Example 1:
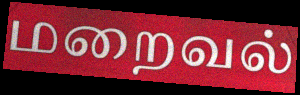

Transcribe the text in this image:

மறைவல்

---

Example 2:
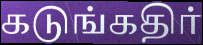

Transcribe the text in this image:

கடுங்கதிர்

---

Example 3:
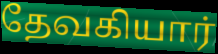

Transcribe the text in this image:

தேவகியார்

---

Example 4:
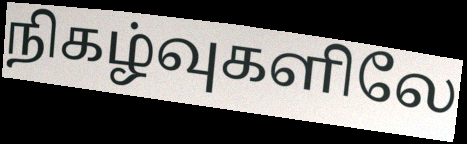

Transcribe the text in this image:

நிகழ்வுகளிலே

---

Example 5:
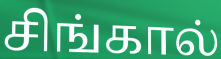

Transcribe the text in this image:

சிங்கால்